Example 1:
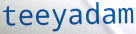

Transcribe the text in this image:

teeyadam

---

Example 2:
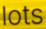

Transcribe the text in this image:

lots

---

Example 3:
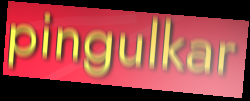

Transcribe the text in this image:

pingulkar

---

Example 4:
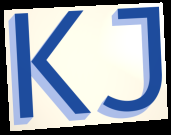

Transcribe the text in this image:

KJ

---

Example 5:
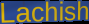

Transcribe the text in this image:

Lachish